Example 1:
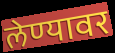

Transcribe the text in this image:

लेण्यावर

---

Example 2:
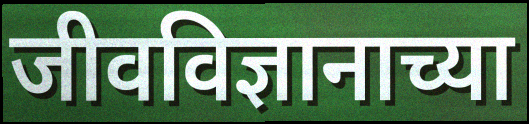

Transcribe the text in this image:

जीवविज्ञानाच्या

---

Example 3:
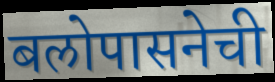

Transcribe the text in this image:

बलोपासनेची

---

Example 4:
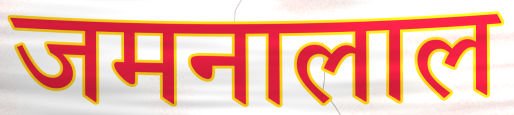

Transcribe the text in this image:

जमनालाल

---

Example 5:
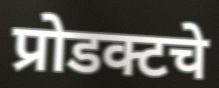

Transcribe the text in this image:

प्रोडक्टचे